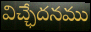
విచ్ఛేదనము